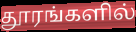
தூரங்களில்